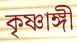
কৃষ্ণাঙ্গী